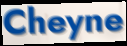
Cheyne